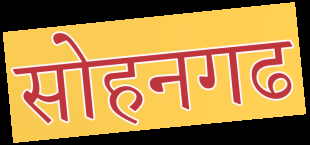
सोहनगढ